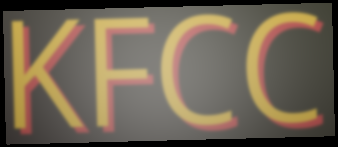
KFCC